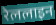
रेललाइन